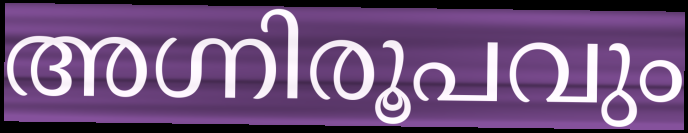
അഗ്നിരൂപവും